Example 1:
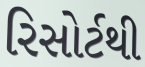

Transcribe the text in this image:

રિસોર્ટથી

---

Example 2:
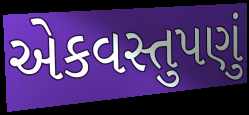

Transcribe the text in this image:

એકવસ્તુપણું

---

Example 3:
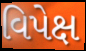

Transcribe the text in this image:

વિપેક્ષ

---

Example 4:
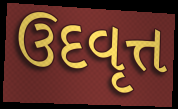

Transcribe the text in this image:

ઉદવૃત્ત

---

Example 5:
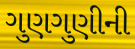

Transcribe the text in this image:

ગુણગુણીની